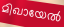
മിഖായേൽ